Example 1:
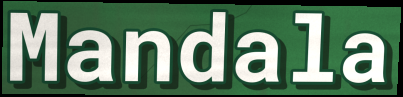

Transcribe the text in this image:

Mandala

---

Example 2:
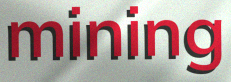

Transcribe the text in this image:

mining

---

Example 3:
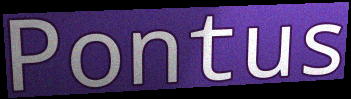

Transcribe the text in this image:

Pontus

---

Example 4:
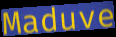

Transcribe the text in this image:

Maduve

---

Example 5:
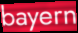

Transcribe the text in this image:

bayern